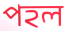
পহল